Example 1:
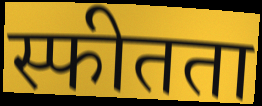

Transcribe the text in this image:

स्फीतता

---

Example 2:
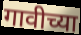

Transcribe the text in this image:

गावीच्या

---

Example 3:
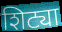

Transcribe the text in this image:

शिट्या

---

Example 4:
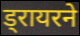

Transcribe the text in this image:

ड्रायरने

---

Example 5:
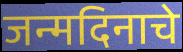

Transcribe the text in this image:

जन्मदिनाचे